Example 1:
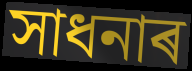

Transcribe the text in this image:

সাধনাৰ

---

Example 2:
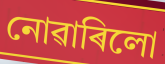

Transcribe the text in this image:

নোৱাৰিলো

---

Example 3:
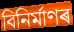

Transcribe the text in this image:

বিনিৰ্মাণৰ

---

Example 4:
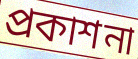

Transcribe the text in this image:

প্ৰকাশনা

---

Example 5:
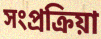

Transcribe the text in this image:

সংপ্ৰক্ৰিয়া